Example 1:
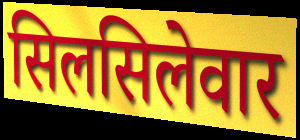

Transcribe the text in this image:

सिलसिलेवार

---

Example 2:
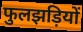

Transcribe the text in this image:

फुलझड़ियों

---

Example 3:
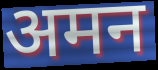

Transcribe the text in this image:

अमन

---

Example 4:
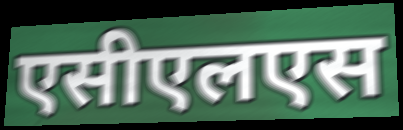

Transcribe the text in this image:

एसीएलएस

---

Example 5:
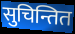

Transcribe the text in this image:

सुचिन्तित